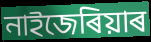
নাইজেৰিয়াৰ